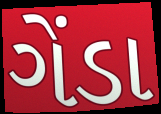
ગેંડા